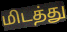
மிடத்து